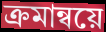
ক্ৰমান্বয়ে